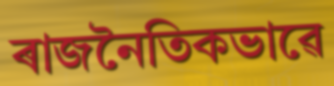
ৰাজনৈতিকভাৱে